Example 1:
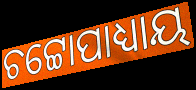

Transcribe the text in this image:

ଚଟ୍ଟୋପାଧ୍ୟାୟ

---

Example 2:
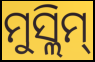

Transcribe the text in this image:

ମୁସ୍ଲିମ୍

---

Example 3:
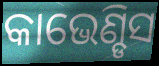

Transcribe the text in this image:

କାଭେଣ୍ଡିସ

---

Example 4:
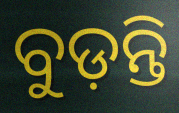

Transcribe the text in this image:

ବୁଡ଼ନ୍ତି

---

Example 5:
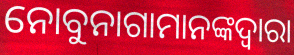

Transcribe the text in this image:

ନୋବୁନାଗାମାନଙ୍କଦ୍ୱାରା